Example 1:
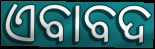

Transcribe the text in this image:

ଏବାବଦ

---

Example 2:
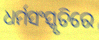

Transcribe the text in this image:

ଧର୍ମସଂସ୍କୃତିରେ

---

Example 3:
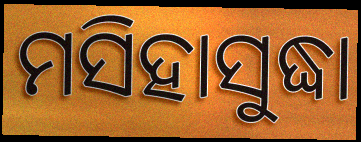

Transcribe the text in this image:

ମସିହାସୁଦ୍ଧା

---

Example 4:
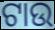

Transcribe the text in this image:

ଟାଉ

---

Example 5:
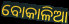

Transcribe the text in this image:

ବୋକାଳିଆ